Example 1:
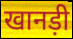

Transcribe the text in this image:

खानड़ी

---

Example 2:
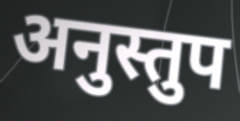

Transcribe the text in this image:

अनुस्तुप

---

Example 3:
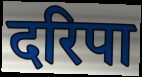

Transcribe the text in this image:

दरिपा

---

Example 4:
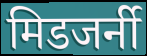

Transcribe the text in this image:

मिडजर्नी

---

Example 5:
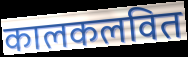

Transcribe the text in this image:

कालकलवित